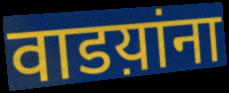
वाडय़ांना